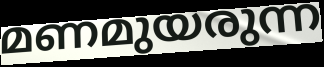
മണമുയരുന്ന